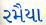
રમૈયા